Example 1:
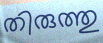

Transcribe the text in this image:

തിരുത്തു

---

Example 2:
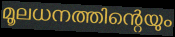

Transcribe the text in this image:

മൂലധനത്തിന്റെയും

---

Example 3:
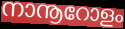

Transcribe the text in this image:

നാനൂറോളം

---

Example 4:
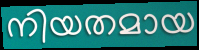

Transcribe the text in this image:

നിയതമായ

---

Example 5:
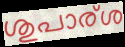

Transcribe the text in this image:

ശുപാര്ശ